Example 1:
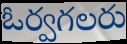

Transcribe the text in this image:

ఓర్వగలరు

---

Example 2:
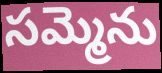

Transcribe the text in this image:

సమ్మెను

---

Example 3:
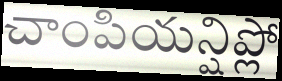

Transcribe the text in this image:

చాంపియన్షిప్లో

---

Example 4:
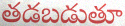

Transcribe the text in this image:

తడబడుతూ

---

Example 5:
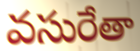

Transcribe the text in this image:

వసురేతా